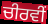
ਚੀਰਵੀਂ